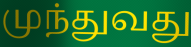
முந்துவது